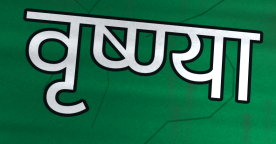
वृष्ण्या